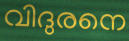
വിദുരനെ